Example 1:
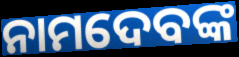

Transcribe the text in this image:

ନାମଦେବଙ୍କ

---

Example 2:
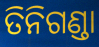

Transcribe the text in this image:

ତିନିଗଣ୍ଡା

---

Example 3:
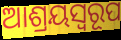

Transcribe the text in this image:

ଆଶ୍ରୟସ୍ୱରୂପ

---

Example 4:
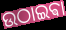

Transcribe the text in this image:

ଉଠାଇଵା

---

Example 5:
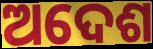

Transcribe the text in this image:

ଅଦେଶ